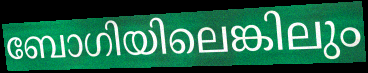
ബോഗിയിലെങ്കിലും